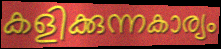
കളിക്കുന്നകാര്യം